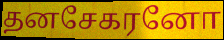
தனசேகரனோ